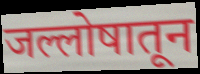
जल्लोषातून